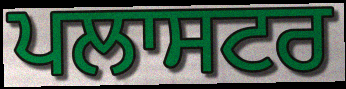
ਪਲਾਸਟਰ